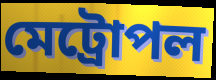
মেট্রোপল